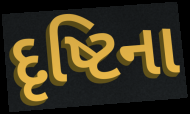
દૃષ્ટિના